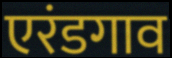
एरंडगाव